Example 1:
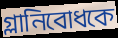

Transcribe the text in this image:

গ্লানিবোধকে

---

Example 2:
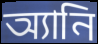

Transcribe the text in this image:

অ্যানি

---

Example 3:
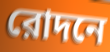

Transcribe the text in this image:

রোদনে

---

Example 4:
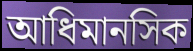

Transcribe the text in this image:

আধিমানসিক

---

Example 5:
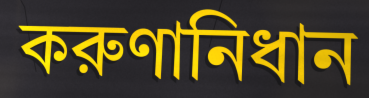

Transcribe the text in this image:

করুণানিধান